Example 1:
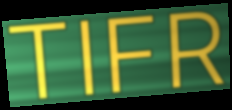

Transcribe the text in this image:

TIFR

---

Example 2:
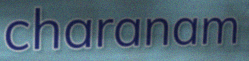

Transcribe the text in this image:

charanam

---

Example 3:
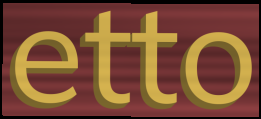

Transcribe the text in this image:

etto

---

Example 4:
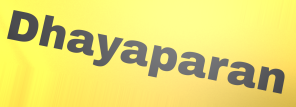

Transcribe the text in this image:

Dhayaparan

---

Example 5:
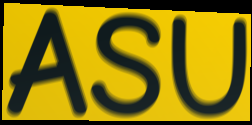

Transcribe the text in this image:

ASU